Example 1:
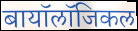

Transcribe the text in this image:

बायॉलॉजिकल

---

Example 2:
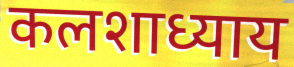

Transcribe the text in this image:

कलशाध्याय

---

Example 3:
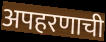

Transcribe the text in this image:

अपहरणाची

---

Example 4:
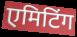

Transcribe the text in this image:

एमिटिंग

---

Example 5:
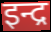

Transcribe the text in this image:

इन्द्र